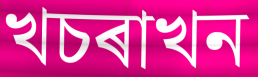
খচৰাখন